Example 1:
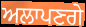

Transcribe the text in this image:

ਅਲਾਪਣਗੇ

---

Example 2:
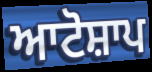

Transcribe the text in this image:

ਆਟੋਸ਼ਾਪ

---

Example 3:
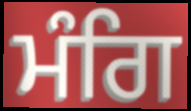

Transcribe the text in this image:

ਮੰਗਿ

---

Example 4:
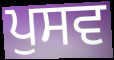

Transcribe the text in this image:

ਪੁਸਵ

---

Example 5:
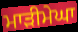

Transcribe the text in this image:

ਮਾੜੀਮੇਘਾ